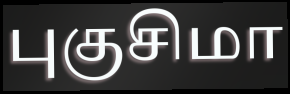
புகுசிமா